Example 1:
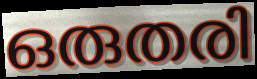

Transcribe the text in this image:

ഒരുതരി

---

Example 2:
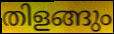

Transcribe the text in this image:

തിളങ്ങും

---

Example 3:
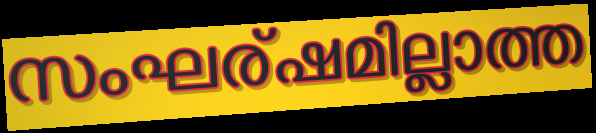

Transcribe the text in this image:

സംഘര്ഷമില്ലാത്ത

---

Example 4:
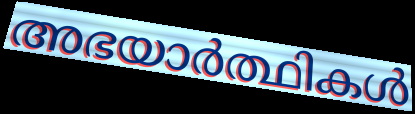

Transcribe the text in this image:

അഭയാർത്ഥികൾ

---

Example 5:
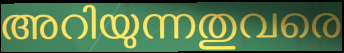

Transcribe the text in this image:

അറിയുന്നതുവരെ